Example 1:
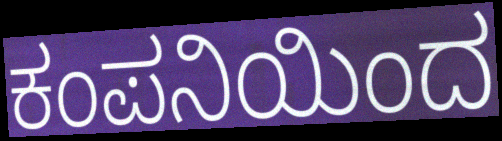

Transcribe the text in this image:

ಕಂಪನಿಯಿಂದ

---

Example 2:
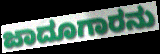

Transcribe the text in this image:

ಜಾದೂಗಾರನು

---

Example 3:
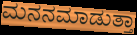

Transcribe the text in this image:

ಮನನಮಾಡುತ್ತಾ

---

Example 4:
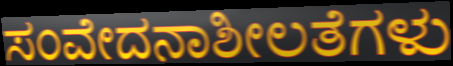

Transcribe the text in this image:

ಸಂವೇದನಾಶೀಲತೆಗಳು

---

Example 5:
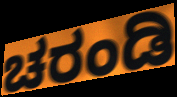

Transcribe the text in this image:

ಚರಂಡಿ